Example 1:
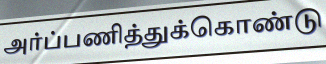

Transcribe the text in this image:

அர்ப்பணித்துக்கொண்டு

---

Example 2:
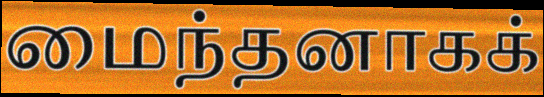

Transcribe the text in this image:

மைந்தனாகக்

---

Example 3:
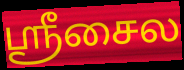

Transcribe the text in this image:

ஸ்ரீசைல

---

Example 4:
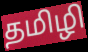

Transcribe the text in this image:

தமிழி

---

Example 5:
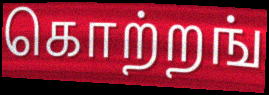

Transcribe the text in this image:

கொற்றங்